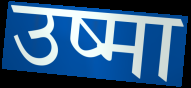
उष्मा